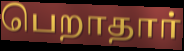
பெறாதார்